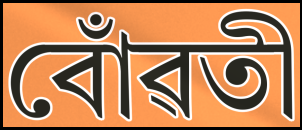
বোঁৱতী